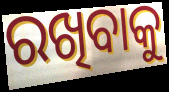
ରଖିବାକୁ